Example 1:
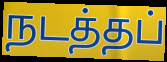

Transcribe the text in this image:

நடத்தப்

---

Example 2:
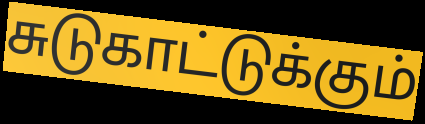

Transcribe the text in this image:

சுடுகாட்டுக்கும்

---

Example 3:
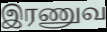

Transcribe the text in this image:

இரணுவ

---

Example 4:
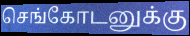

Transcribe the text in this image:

செங்கோடனுக்கு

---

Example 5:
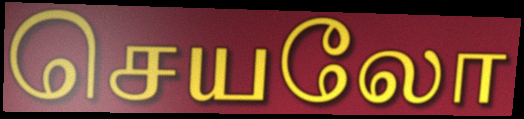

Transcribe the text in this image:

செயலோ